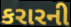
કરારની